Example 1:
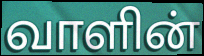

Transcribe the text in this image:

வாளின்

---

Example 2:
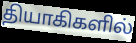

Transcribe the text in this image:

தியாகிகளில்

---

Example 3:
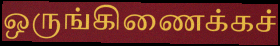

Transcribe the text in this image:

ஒருங்கிணைக்கச்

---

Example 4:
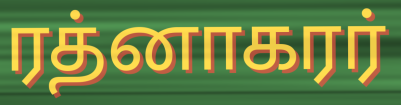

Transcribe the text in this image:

ரத்னாகரர்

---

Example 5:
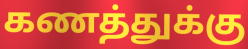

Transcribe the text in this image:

கணத்துக்கு